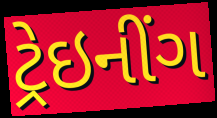
ટ્રેઇનીંગ